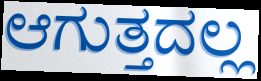
ಆಗುತ್ತದಲ್ಲ